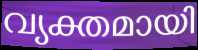
വ്യക്തമായി